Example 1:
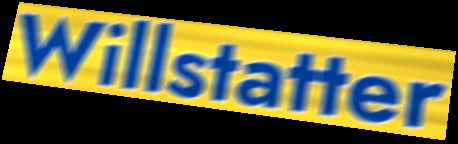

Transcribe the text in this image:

Willstatter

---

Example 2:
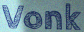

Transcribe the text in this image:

Vonk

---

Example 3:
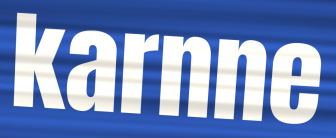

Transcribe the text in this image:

karnne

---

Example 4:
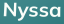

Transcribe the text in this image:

Nyssa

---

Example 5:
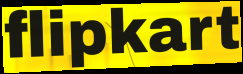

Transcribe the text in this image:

flipkart